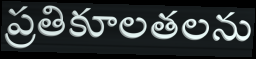
ప్రతికూలతలను